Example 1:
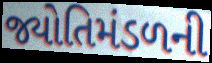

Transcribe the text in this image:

જ્યોતિમંડળની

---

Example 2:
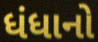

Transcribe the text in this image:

ધંધાનો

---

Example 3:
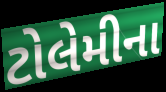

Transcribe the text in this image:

ટોલેમીના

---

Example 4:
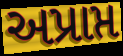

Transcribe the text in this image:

અપ્રાપ્ત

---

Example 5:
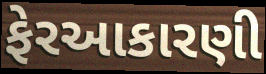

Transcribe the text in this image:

ફેરઆકારણી